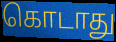
கொடாது